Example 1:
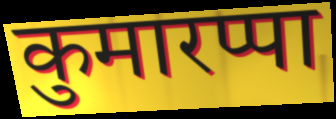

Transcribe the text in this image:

कुमारप्पा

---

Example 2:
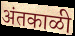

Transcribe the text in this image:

अंतकाळी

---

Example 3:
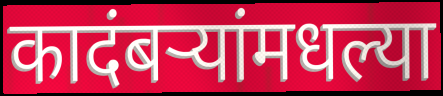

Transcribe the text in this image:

कादंबऱ्यांमधल्या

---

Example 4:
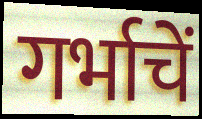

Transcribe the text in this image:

गर्भाचें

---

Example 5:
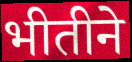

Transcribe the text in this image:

भीतीने